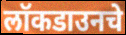
लॉकडाउनचे